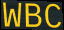
WBC